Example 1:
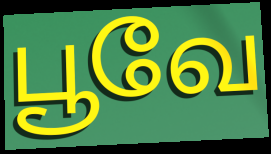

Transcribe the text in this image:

பூவே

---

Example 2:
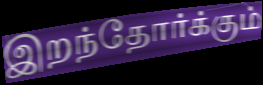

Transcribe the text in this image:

இறந்தோர்க்கும்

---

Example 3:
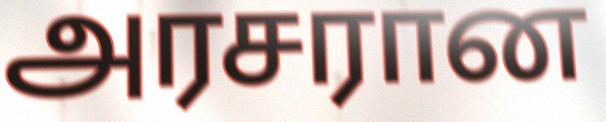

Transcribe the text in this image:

அரசரான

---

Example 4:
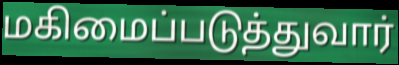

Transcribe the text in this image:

மகிமைப்படுத்துவார்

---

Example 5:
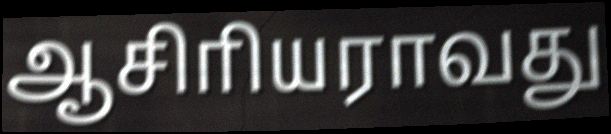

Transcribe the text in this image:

ஆசிரியராவது